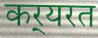
कर्यरत